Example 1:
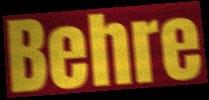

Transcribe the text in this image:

Behre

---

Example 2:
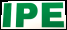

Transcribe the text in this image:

IPE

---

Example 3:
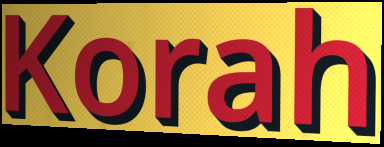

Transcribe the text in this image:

Korah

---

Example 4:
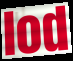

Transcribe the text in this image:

lod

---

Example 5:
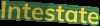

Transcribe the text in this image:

Intestate